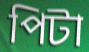
পিটা